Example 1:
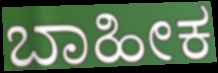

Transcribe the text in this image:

ಬಾಹೀಕ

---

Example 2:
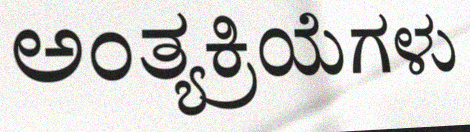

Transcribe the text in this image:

ಅಂತ್ಯಕ್ರಿಯೆಗಳು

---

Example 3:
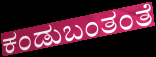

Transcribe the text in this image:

ಕಂಡುಬಂತಂತೆ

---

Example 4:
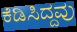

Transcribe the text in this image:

ಕೆಡಿಸಿದ್ದವು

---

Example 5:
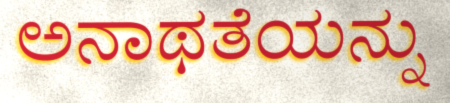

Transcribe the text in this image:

ಅನಾಥತೆಯನ್ನು